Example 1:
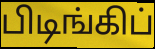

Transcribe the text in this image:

பிடிங்கிப்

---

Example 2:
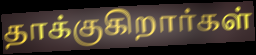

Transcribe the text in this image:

தாக்குகிறார்கள்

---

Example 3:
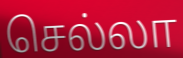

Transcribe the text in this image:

செல்லா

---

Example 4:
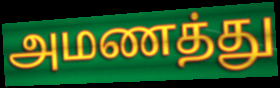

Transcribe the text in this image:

அமணத்து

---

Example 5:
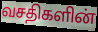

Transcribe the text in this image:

வசதிகளின்